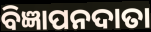
ବିଜ୍ଞାପନଦାତା